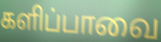
களிப்பாவை